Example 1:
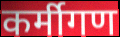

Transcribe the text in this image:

कर्मीगण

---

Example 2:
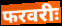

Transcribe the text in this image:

फरवरीः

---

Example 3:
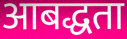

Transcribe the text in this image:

आबद्धता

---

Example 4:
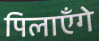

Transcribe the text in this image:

पिलाएँगे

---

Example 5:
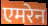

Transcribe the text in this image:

एमरेन